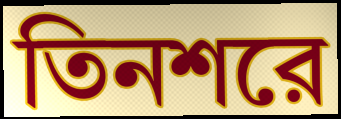
তিনশরে